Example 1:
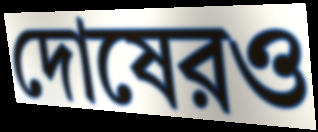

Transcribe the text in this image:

দোষেরও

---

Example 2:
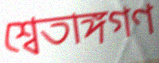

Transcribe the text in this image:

শ্বেতাঙ্গগণ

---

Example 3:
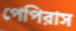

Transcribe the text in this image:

পেপিরাস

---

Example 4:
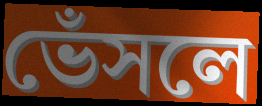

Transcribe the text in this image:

ভেঁসলে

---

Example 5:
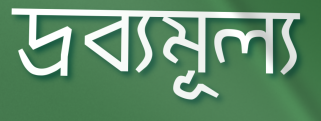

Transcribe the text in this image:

দ্রব্যমূল্য